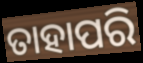
ତାହାପରି